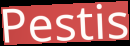
Pestis